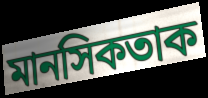
মানসিকতাক